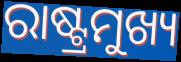
ରାଷ୍ଟ୍ରମୁଖ୍ୟ